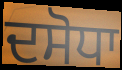
ਦਸੋਧਾ